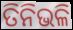
ତିନିଭଳି